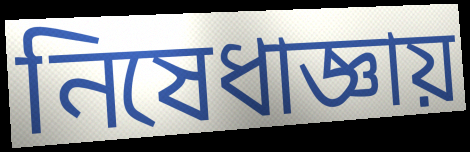
নিষেধাজ্ঞায়